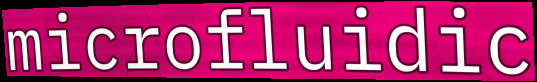
microfluidic